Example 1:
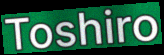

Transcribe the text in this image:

Toshiro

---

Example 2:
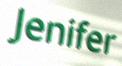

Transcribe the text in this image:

Jenifer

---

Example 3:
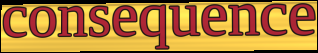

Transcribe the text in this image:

consequence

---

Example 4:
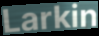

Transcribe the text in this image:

Larkin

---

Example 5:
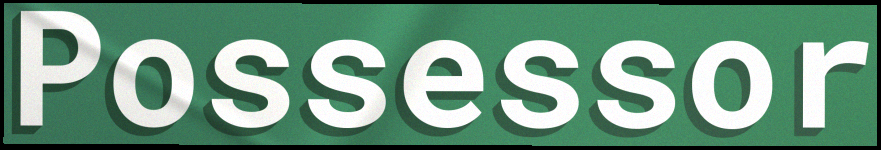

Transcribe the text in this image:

Possessor